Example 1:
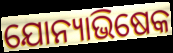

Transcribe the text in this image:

ଯୋନ୍ୟାଭିଷେକ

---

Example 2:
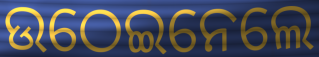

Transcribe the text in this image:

ଉଠେଇନେଲେ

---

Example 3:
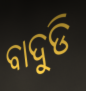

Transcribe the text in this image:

ବାଦୁଡି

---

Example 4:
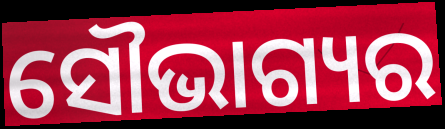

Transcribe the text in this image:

ସୌଭାଗ୍ୟର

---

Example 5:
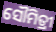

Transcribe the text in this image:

ସୌମିତ୍ରୀ